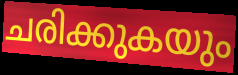
ചരിക്കുകയും